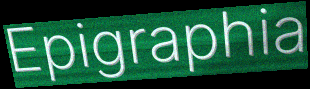
Epigraphia